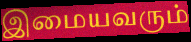
இமையவரும்